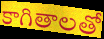
కాగితాలతో